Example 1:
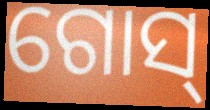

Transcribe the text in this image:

ଗୋସ୍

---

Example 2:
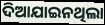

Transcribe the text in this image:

ଦିଆଯାଇନଥିଲା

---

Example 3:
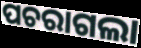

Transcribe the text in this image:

ପଚରାଗଲା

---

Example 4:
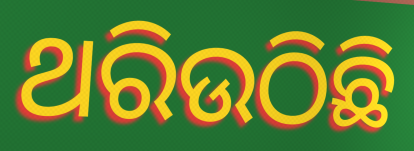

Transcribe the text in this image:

ଥରିଉଠିଛି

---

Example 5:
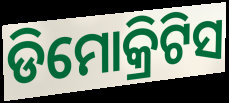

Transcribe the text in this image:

ଡିମୋକ୍ରିଟିସ